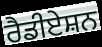
ਰੈਡੀਏਸ਼ਨ